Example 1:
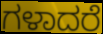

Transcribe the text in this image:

ಗಳಾದರೆ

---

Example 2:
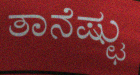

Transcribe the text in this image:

ತಾನೆಷ್ಟು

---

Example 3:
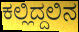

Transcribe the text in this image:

ಕಲ್ಲಿದ್ದಲಿನ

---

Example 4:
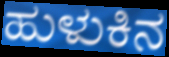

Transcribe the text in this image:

ಹುಳುಕಿನ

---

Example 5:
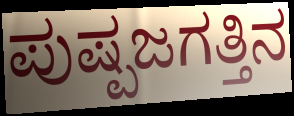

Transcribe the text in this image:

ಪುಷ್ಪಜಗತ್ತಿನ